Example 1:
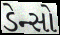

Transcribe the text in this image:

ડેન્સો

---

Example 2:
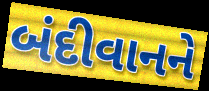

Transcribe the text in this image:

બંદીવાનને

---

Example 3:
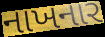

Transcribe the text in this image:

નાખનાર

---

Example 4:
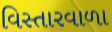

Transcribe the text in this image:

વિસ્તારવાળા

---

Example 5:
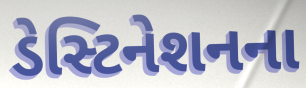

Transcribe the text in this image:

ડેસ્ટિનેશનના